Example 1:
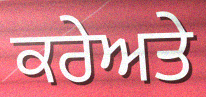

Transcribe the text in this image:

ਕਰੇਅਤੇ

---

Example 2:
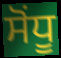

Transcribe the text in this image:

ਸੋਂਧੂ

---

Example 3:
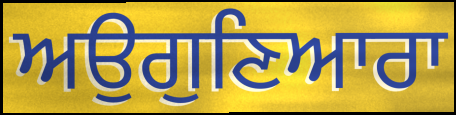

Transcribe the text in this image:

ਅਉਗੁਣਿਆਰਾ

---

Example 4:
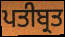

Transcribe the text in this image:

ਪਤੀਬ੍ਰਤ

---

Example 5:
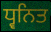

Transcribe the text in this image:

ਧ੍ਵਨਿਤ